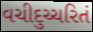
વચીદુચ્ચરિતં